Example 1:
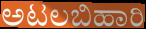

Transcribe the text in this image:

ಅಟಲಬಿಹಾರಿ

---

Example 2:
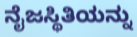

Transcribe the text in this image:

ನೈಜಸ್ಥಿತಿಯನ್ನು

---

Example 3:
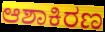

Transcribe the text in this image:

ಆಶಾಕಿರಣ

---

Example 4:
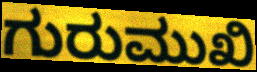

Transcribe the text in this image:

ಗುರುಮುಖಿ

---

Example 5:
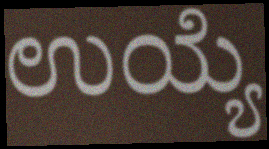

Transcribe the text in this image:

ಉಯ್ಯೆ